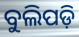
ବୁଲିପଡ଼ି